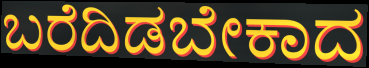
ಬರೆದಿಡಬೇಕಾದ